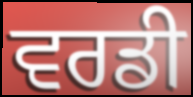
ਵਰਡੀ